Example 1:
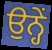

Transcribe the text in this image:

ਉਨ੍ਹੇਂ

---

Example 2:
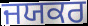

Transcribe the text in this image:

ਜਯਕਰ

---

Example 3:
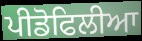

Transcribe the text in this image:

ਪੀਡੋਫਿਲੀਆ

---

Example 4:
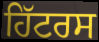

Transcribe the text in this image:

ਹਿੱਟਰਸ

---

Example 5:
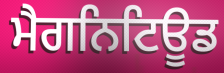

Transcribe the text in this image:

ਮੈਗਨਿਟਿਊਡ